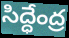
సిద్ధేంద్ర